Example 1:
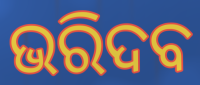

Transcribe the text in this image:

ଭରିଦବ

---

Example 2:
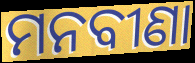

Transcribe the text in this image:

ମନବୀଣା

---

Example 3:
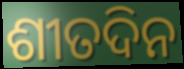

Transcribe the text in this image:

ଶୀତଦିନ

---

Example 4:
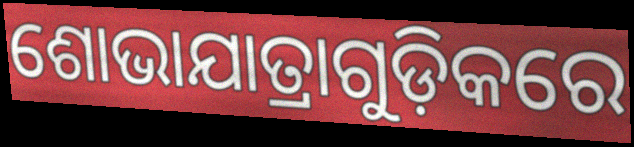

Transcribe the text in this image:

ଶୋଭାଯାତ୍ରାଗୁଡ଼ିକରେ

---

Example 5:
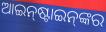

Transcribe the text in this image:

ଆଇନ୍‌ଷ୍ଟାଇନ୍‌ଙ୍କର